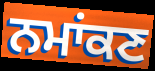
ਨਮਾਂਕਣ